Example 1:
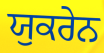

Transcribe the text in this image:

ਯੁਕਰੇਨ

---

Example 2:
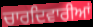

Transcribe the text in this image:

ਚਾਰਦਿਵਾਰੀਆਂ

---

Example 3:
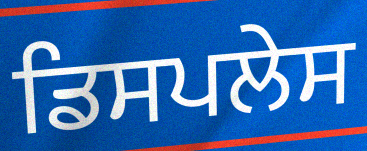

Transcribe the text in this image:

ਡਿਸਪਲੇਸ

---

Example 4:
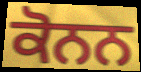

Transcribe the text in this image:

ਕੋਨਨ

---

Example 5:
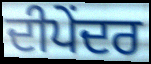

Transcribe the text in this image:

ਦੀਪੇਂਦਰ